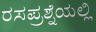
ರಸಪ್ರಶ್ನೆಯಲ್ಲಿ